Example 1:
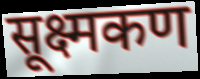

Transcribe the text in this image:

सूक्ष्मकण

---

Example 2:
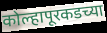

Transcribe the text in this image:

कोल्हापूरकडच्या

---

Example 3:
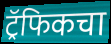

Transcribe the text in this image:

ट्रॅफिकचा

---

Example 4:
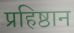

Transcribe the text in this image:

प्रहिष्ठान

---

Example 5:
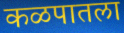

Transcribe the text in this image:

कळपातला